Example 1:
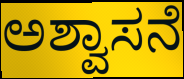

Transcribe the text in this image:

ಅಶ್ವಾಸನೆ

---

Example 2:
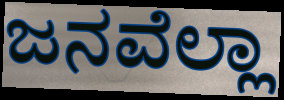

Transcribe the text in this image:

ಜನವೆಲ್ಲಾ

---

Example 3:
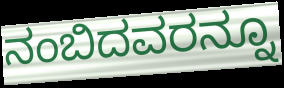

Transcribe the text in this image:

ನಂಬಿದವರನ್ನೂ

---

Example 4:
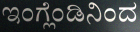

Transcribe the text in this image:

ಇಂಗ್ಲೆಂಡಿನಿಂದ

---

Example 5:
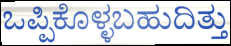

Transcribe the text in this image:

ಒಪ್ಪಿಕೊಳ್ಳಬಹುದಿತ್ತು